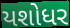
યશોધર